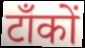
टाँकों